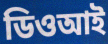
ডিওআই